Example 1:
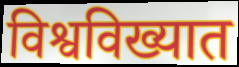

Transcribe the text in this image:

विश्वविख्यात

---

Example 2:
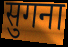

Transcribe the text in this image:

सुगना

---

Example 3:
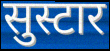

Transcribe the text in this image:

सुस्टार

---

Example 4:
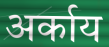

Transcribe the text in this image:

अर्काय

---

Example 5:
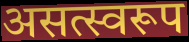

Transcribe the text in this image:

असत्स्वरूप